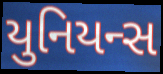
યુનિયન્સ